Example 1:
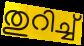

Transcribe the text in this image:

തുറിച്ച്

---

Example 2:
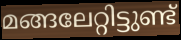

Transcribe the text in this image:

മങ്ങലേറ്റിട്ടുണ്ട്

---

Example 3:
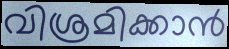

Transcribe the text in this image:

വിശ്രമിക്കാൻ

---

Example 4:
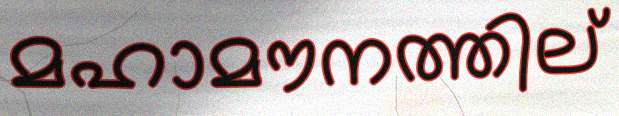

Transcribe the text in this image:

മഹാമൗനത്തില്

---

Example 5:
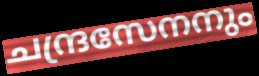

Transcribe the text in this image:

ചന്ദ്രസേനനും